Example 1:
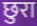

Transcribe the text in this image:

छुरा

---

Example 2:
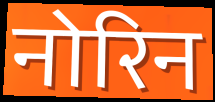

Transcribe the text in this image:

नोरिन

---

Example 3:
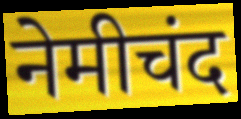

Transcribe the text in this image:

नेमीचंद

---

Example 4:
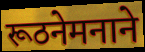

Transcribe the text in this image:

रूठनेमनाने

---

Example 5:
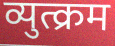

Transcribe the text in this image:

व्युत्क्रम